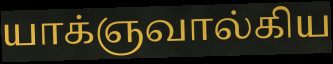
யாக்ஞவால்கிய